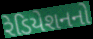
રેડિયેશનનો